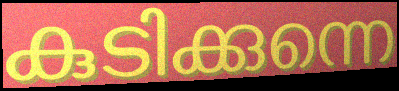
കുടിക്കുന്നെ